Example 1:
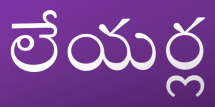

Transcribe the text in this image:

లేయర్ల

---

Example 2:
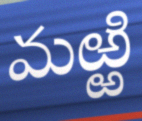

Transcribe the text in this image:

మఱ్ఱి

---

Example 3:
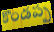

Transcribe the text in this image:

కొండప్ప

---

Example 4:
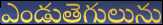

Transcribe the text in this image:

ఎండుతెగులును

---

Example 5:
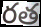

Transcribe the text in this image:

రత